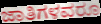
ಜಾತಿಗಳವರೂ